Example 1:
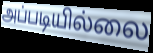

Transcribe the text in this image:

அப்படியில்லை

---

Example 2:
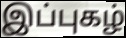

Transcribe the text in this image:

இப்புகழ்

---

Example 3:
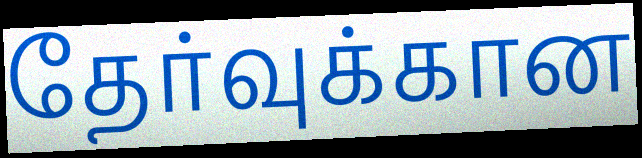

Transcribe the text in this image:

தேர்வுக்கான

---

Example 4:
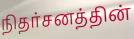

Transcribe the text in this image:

நிதர்சனத்தின்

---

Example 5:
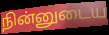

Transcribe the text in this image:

நின்னுடைய